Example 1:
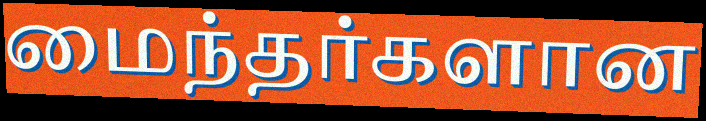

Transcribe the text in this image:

மைந்தர்களான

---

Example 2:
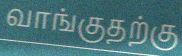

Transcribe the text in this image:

வாங்குதற்கு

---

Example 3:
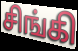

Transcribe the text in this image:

சிங்கி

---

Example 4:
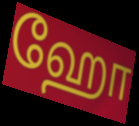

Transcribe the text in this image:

ஹோ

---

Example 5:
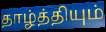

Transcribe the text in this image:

தாழ்த்தியும்